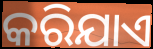
କରିଯାଏ